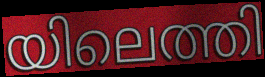
യിലെത്തി